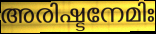
അരിഷ്ടനേമിഃ